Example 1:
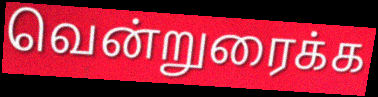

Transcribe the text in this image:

வென்றுரைக்க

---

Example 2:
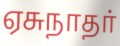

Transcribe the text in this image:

ஏசுநாதர்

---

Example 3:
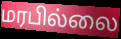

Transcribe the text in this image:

மரபில்லை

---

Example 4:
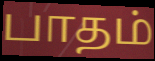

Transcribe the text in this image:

பாதம்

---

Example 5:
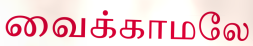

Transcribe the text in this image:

வைக்காமலே